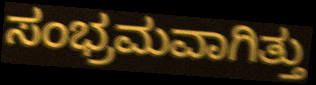
ಸಂಭ್ರಮವಾಗಿತ್ತು